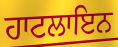
ਹਾਟਲਾਇਨ